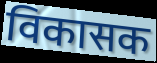
विकासक